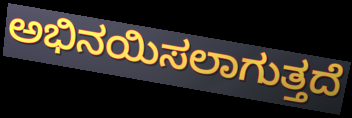
ಅಭಿನಯಿಸಲಾಗುತ್ತದೆ